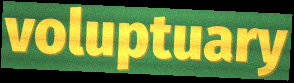
voluptuary